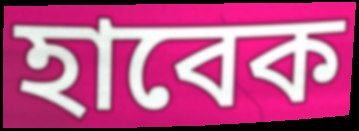
হাবেক